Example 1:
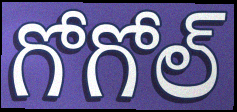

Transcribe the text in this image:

గోగోల్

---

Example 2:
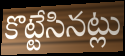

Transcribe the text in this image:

కొట్టేసినట్లు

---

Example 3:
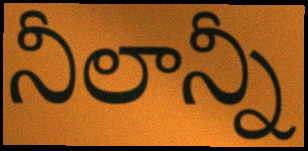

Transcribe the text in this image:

నీలాన్నీ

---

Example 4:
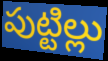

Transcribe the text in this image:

పుట్టిల్లు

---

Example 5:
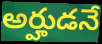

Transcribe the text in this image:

అర్హుడనే